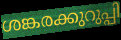
ശങ്കരക്കുറുപ്പി